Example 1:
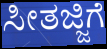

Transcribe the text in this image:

ಸೀತಜ್ಜಿಗೆ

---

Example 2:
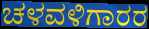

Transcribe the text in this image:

ಚಳವಳಿಗಾರರ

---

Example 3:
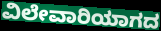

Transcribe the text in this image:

ವಿಲೇವಾರಿಯಾಗದ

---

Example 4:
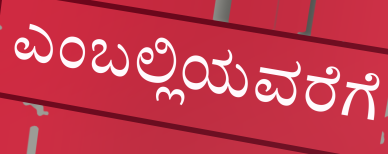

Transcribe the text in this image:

ಎಂಬಲ್ಲಿಯವರೆಗೆ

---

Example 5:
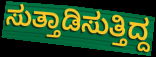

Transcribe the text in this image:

ಸುತ್ತಾಡಿಸುತ್ತಿದ್ದ